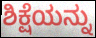
ಶಿಕ್ಷೆಯನ್ನು